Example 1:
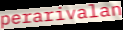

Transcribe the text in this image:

perarivalan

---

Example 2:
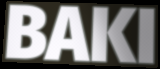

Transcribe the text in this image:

BAKI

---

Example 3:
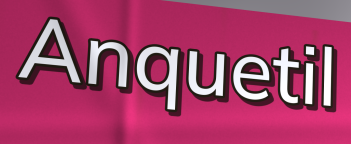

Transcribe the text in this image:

Anquetil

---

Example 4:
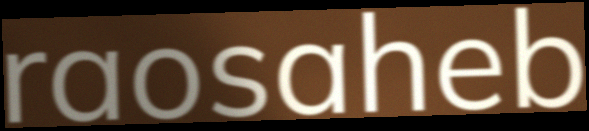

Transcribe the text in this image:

raosaheb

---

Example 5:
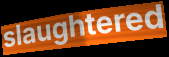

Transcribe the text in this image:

slaughtered